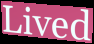
Lived